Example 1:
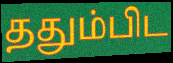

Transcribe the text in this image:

ததும்பிட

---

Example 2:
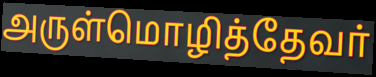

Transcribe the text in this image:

அருள்மொழித்தேவர்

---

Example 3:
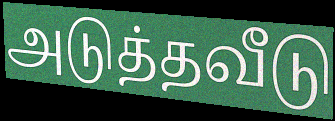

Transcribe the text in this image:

அடுத்தவீடு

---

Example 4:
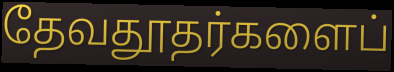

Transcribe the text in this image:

தேவதூதர்களைப்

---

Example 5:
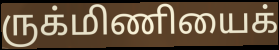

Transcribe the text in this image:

ருக்மிணியைக்